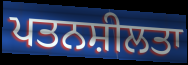
ਪਤਨਸ਼ੀਲਤਾ